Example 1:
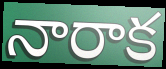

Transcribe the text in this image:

నారాక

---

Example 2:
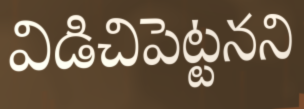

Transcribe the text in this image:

విడిచిపెట్టనని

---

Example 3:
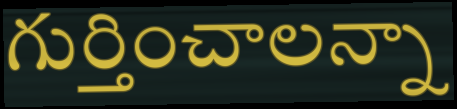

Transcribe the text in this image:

గుర్తించాలన్నా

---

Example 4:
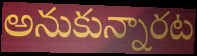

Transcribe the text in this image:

అనుకున్నారట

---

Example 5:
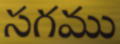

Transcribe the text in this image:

సగము